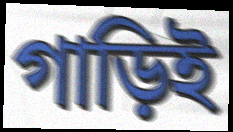
গাড়িই